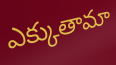
ఎక్కుతామా